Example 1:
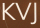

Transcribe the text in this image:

KVJ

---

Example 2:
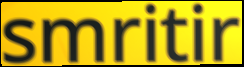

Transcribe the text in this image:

smritir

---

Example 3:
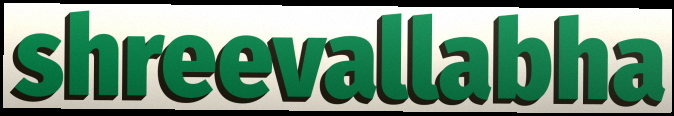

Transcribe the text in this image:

shreevallabha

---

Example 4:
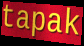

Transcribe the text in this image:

tapak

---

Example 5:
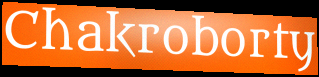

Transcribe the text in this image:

Chakroborty